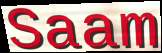
Saam